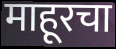
माहूरचा